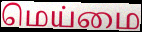
மெய்மை